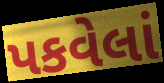
પકવેલાં